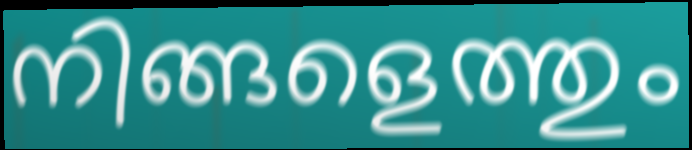
നിങ്ങളെത്തും